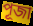
পূজা